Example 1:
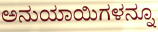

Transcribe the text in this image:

ಅನುಯಾಯಿಗಳನ್ನೂ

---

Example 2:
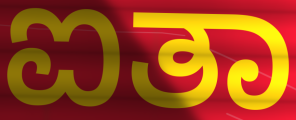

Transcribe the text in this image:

ಐತಾ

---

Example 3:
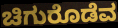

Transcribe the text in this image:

ಚಿಗುರೊಡೆವ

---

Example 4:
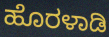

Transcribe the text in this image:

ಹೊರಳಾಡಿ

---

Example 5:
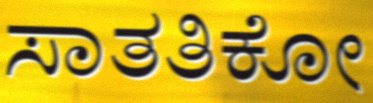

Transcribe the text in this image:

ಸಾತತಿಕೋ